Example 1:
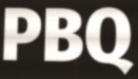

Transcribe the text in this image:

PBQ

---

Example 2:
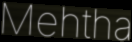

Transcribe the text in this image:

Mehtha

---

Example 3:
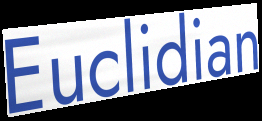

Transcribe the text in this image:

Euclidian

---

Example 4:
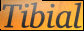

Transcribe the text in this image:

Tibial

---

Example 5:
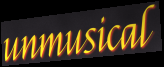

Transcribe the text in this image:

unmusical